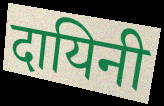
दायिनी